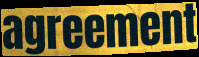
agreement